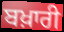
ਬਖ਼ਾਰੀ